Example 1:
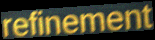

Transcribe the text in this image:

refinement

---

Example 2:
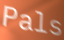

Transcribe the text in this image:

Pals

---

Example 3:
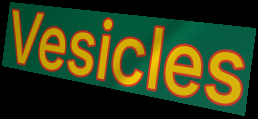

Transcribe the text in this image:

Vesicles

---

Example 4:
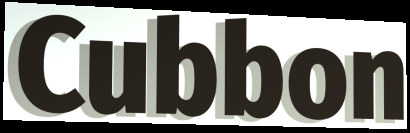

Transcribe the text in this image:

Cubbon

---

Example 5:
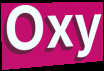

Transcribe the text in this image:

Oxy